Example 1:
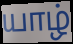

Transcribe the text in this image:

யாழ்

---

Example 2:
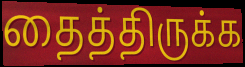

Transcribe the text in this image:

தைத்திருக்க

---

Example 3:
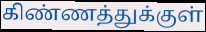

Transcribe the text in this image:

கிண்ணத்துக்குள்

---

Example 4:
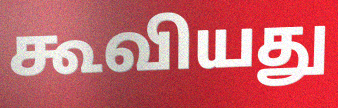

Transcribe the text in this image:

கூவியது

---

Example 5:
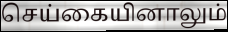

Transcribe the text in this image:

செய்கையினாலும்